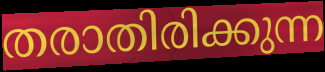
തരാതിരിക്കുന്ന